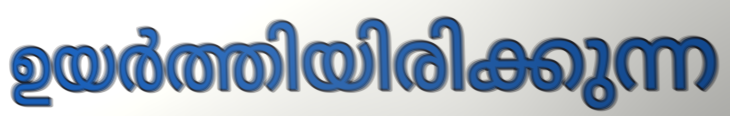
ഉയർത്തിയിരിക്കുന്ന